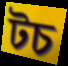
টচ